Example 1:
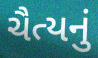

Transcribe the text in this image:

ચૈત્યનું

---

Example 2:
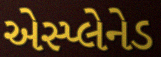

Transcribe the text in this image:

એસ્પ્લેનેડ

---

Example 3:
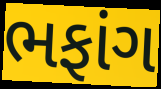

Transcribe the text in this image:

ભફાંગ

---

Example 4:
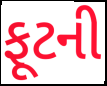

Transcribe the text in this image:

ફૂટની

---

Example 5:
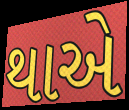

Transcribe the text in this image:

થાએ